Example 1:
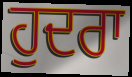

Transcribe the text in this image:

ਹੁਦਰਾ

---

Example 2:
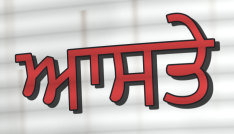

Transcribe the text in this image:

ਆਸਤੇ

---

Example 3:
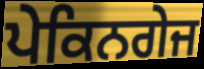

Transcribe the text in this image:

ਪੇਕਿਨਗੇਜ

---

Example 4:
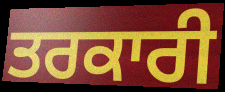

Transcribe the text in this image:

ਤਰਕਾਰੀ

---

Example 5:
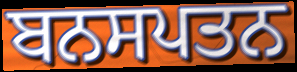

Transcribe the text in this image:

ਬਨਸਪਤਨ